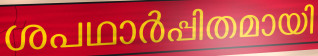
ശപഥാർപ്പിതമായി